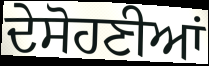
ਦੇਸੋਹਣੀਆਂ